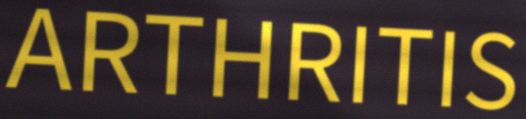
ARTHRITIS